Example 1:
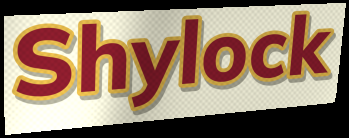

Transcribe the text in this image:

Shylock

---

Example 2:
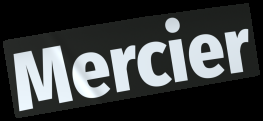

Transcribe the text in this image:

Mercier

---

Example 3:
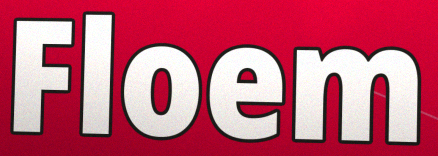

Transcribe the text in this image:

Floem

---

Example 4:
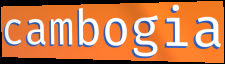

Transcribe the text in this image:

cambogia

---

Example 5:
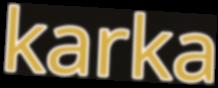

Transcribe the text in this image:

karka